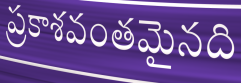
ప్రకాశవంతమైనది